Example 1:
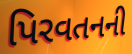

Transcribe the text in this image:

પિરવતનની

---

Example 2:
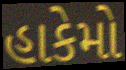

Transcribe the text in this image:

હાકેમો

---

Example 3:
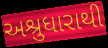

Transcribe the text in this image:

અશ્રુધારાથી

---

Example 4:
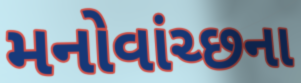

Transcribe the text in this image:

મનોવાંચ્છના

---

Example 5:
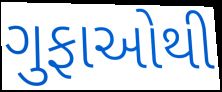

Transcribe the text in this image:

ગુફાઓથી